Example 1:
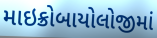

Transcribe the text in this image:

માઇક્રોબાયોલોજીમાં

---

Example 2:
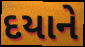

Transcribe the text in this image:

દયાને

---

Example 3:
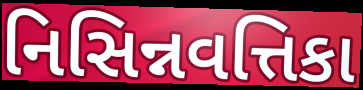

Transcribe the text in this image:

નિસિન્નવત્તિકા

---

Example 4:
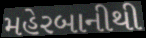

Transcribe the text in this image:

મહેરબાનીથી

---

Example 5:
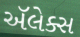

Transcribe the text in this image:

ઍલેક્સ